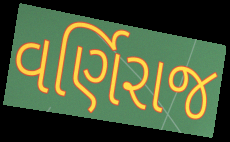
વર્ણિરાજ